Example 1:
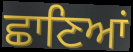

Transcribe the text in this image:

ਛਾਣਿਆਂ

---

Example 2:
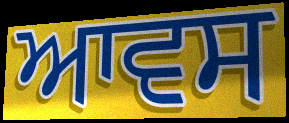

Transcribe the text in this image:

ਆਵਸ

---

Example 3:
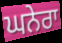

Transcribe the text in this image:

ਘਨੇਰਾ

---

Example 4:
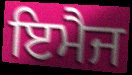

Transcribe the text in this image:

ਇਮੈਜ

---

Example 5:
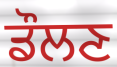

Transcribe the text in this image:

ਡੌਲਣ